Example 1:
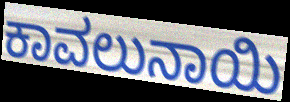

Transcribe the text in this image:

ಕಾವಲುನಾಯಿ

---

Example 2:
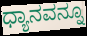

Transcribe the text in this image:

ಧ್ಯಾನವನ್ನೂ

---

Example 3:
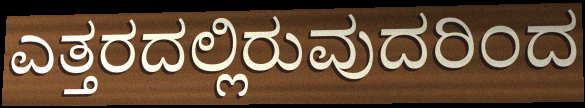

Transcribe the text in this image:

ಎತ್ತರದಲ್ಲಿರುವುದರಿಂದ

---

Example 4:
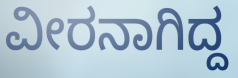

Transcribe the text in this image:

ವೀರನಾಗಿದ್ದ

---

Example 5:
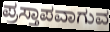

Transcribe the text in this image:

ಪ್ರಸ್ತಾಪವಾಗುವ